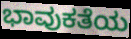
ಭಾವುಕತೆಯ